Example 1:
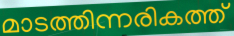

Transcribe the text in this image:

മാടത്തിന്നരികത്ത്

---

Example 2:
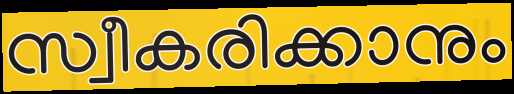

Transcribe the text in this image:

സ്വീകരിക്കാനും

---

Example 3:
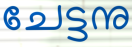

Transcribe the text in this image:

ചേട്ടനു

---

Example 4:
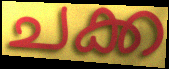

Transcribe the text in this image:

ചക്ക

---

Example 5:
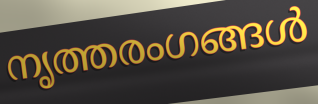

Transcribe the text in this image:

നൃത്തരംഗങ്ങൾ